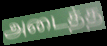
அடைத்த